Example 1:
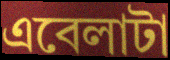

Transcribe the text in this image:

এবেলাটা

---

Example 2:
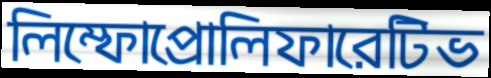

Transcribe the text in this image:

লিম্ফোপ্রোলিফারেটিভ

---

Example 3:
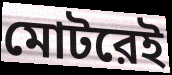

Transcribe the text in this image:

মোটরেই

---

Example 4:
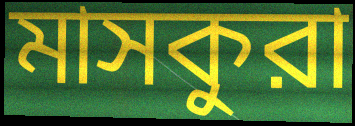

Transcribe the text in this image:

মাসকুরা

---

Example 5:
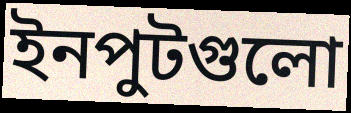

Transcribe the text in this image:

ইনপুটগুলো